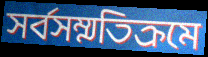
সর্বসম্মতিক্রমে